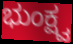
ಭುಂಕ್ಷ್ವ